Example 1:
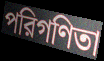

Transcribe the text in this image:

পরিগণিতা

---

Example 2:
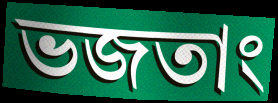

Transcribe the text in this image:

ভজতাং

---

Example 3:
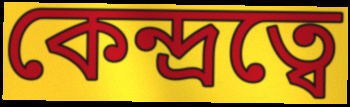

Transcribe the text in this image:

কেন্দ্রত্বে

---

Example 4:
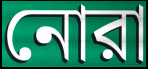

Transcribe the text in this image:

নোরা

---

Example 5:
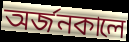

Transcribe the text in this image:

অর্জনকালে